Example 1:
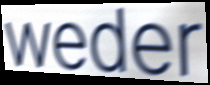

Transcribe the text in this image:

weder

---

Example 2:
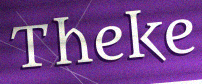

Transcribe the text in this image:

Theke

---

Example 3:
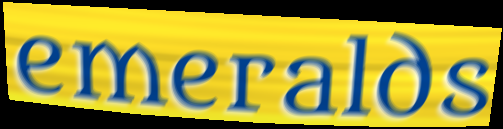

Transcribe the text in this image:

emeralds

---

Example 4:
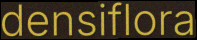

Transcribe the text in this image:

densiflora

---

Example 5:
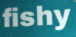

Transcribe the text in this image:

fishy